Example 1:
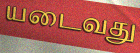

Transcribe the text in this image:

யடைவது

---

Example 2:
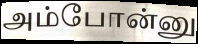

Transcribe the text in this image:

அம்போன்னு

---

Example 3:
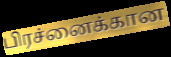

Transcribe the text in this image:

பிரச்னைக்கான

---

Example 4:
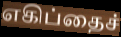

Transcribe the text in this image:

எகிப்தைச்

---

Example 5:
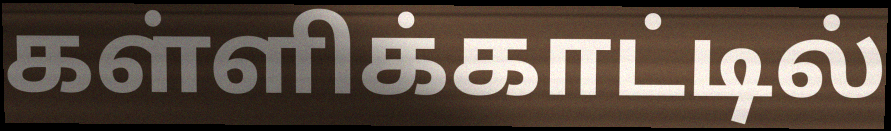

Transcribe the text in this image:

கள்ளிக்காட்டில்